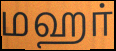
மஹர்